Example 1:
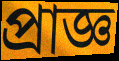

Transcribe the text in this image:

প্রাজ্ঞ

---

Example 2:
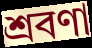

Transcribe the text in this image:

শ্রবণা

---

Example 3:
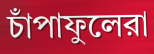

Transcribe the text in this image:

চাঁপাফুলেরা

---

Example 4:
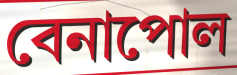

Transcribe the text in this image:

বেনাপোল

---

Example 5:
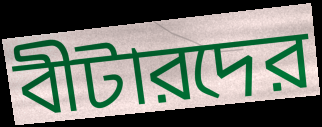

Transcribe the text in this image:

বীটারদের